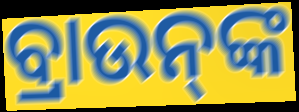
ବ୍ରାଉନ୍‌ଙ୍କ